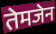
तेमजेन